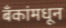
बॅंकांमधून